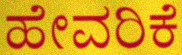
ಹೇವರಿಕೆ